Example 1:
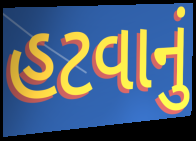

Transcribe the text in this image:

હટવાનું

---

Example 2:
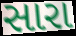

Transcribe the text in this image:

સારા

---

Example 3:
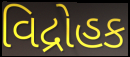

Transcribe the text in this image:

વિદ્રોહક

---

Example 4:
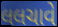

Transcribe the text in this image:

લલચાવે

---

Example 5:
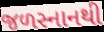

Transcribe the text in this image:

જળસ્નાનથી